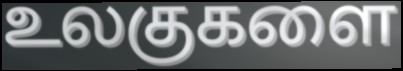
உலகுகளை